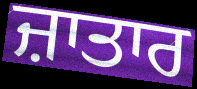
ਜ਼ਾਤਾਰ